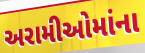
અરામીઓમાંના